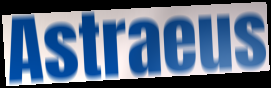
Astraeus